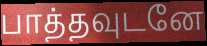
பாத்தவுடனே